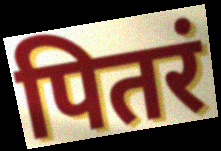
पितरं